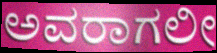
ಅವರಾಗಲೀ